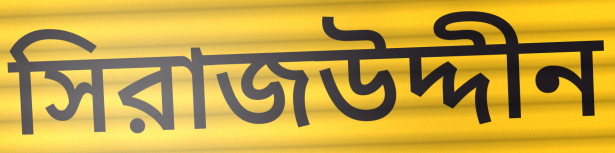
সিরাজউদ্দীন